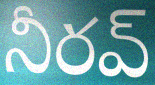
నీరవ్